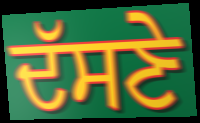
ਦੱਸਣੇ